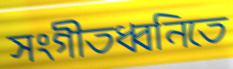
সংগীতধ্বনিতে